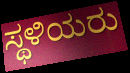
ಸ್ಥಳಿಯರು